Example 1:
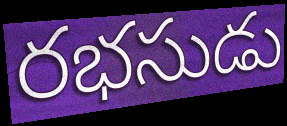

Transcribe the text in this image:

రభసుడు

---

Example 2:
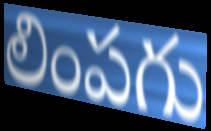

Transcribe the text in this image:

లింపగు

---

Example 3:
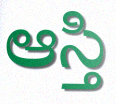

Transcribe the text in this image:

ఆస్తి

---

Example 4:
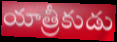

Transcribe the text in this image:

యాత్రీకుడు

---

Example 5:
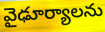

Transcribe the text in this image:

వైఢూర్యాలను